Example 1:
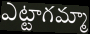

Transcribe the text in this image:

ఎట్టాగమ్మా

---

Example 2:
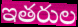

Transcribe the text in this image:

ఇతరుల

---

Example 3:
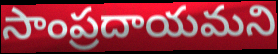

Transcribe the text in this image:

సాంప్రదాయమని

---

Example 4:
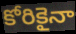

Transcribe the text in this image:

కోరికైనా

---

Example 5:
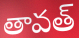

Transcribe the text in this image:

తావత్